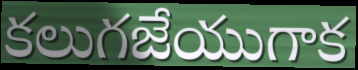
కలుగజేయుగాక